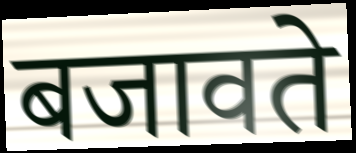
बजावते